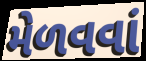
મેળવવાં